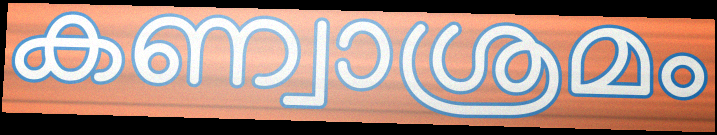
കണ്വാശ്രമം